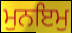
ਮੁਨਇਮੁ